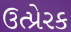
ઉત્પ્રેરક